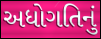
અધોગતિનું